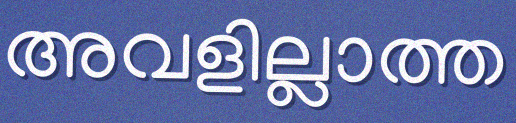
അവളില്ലാത്ത